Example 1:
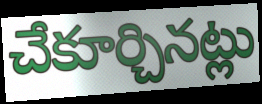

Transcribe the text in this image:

చేకూర్చినట్లు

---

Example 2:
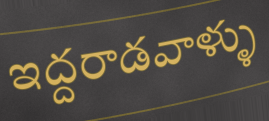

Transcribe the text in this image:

ఇద్దరాడవాళ్ళు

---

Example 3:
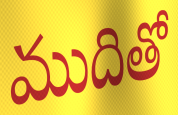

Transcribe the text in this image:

ముదితో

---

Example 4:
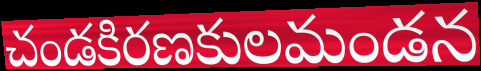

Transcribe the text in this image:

చండకిరణకులమండన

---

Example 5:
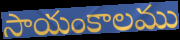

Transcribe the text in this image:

సాయంకాలము